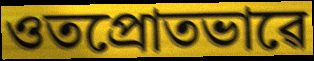
ওতপ্ৰোতভাৱে